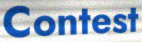
Contest